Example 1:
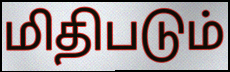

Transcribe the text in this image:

மிதிபடும்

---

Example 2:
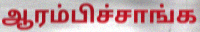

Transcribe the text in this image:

ஆரம்பிச்சாங்க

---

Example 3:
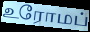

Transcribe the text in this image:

உரோமப்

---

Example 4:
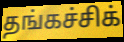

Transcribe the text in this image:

தங்கச்சிக்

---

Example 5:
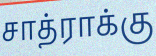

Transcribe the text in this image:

சாத்ராக்கு